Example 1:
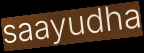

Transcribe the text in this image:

saayudha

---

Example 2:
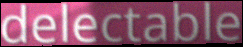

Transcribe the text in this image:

delectable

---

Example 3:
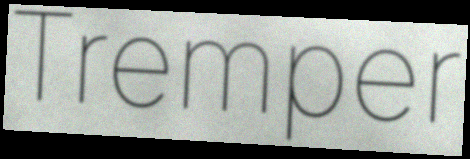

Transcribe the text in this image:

Tremper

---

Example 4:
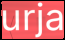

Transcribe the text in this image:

urja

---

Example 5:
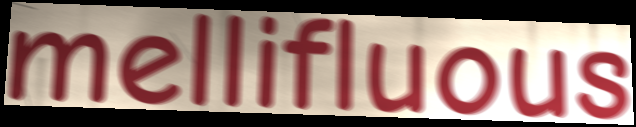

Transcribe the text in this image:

mellifluous